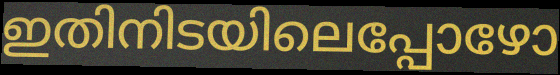
ഇതിനിടയിലെപ്പോഴോ